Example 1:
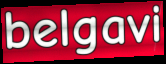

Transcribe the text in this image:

belgavi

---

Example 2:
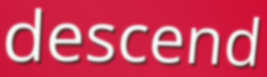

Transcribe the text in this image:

descend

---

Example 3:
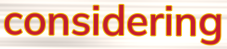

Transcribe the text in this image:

considering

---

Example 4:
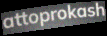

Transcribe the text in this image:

attoprokash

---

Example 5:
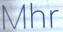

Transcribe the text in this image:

Mhr